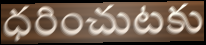
ధరించుటకు